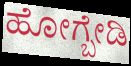
ಹೋಗ್ಬೇಡಿ